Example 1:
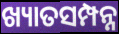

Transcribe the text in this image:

ଖ୍ୟାତସମ୍ପନ୍ନ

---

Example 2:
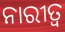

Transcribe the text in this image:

ନାରୀତ୍ୱ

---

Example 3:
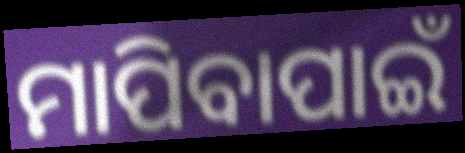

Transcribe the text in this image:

ମାପିବାପାଇଁ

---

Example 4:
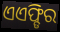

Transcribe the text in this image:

ଏଏଫ୍ଡିର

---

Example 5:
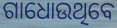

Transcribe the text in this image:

ଗାଧୋଉଥିବେ